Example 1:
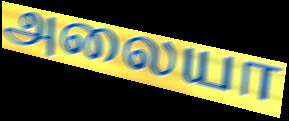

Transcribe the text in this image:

அலையா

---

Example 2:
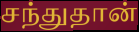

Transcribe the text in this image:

சந்துதான்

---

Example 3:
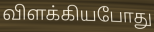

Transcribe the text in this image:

விளக்கியபோது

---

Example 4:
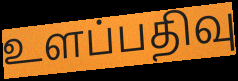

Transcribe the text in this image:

உளப்பதிவு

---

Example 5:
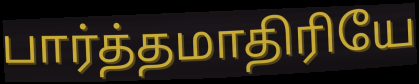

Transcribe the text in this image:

பார்த்தமாதிரியே